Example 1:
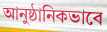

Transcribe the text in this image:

আনুষ্ঠানিকভাবে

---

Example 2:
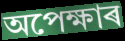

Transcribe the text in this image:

অপেক্ষাৰ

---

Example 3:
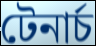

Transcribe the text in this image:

টেনাৰ্চ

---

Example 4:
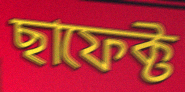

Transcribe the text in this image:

ছাফেক্ট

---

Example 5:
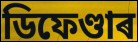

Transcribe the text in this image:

ডিফেণ্ডাৰ